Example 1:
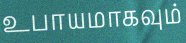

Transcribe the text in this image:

உபாயமாகவும்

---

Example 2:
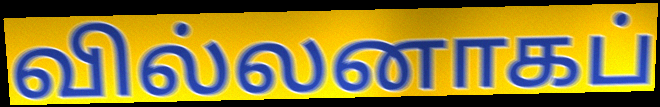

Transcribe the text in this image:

வில்லனாகப்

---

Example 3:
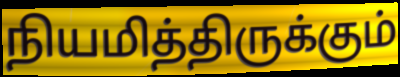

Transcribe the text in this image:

நியமித்திருக்கும்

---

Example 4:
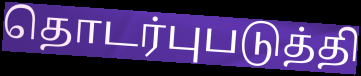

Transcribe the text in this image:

தொடர்புபடுத்தி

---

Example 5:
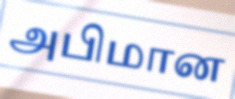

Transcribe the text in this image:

அபிமான